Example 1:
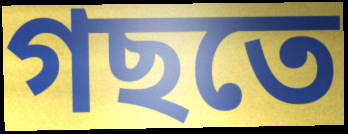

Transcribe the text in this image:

গছতে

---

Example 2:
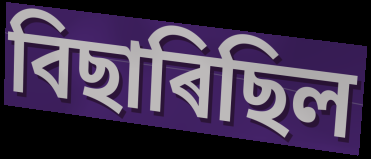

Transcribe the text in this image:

বিছাৰিছিল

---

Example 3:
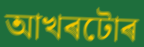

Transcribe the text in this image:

আখৰটোৰ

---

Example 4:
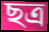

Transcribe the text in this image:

ছত্ৰ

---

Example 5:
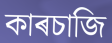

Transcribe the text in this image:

কাৰচাজি